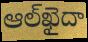
ఆల్‌ఖైదా